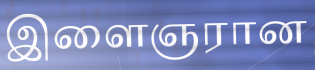
இளைஞரான